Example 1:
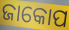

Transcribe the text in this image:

ଜାକୋପ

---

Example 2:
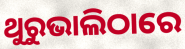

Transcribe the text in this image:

ଥୁରୁଭାଲିଠାରେ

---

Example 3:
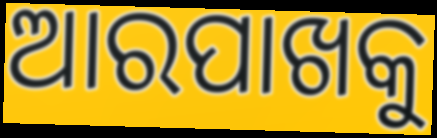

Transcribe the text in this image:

ଆରପାଖକୁ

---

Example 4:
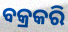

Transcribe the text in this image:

ବକ୍ରକରି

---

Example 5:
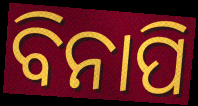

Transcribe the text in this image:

ବିନାପି